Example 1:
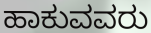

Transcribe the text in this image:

ಹಾಕುವವರು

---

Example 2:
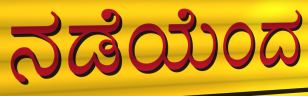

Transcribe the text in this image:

ನಡೆಯೆಂದ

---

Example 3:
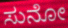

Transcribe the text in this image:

ಸುನೋ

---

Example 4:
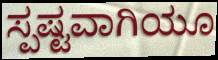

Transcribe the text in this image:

ಸ್ಪಷ್ಟವಾಗಿಯೂ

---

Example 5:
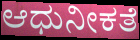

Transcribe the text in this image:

ಆಧುನೀಕತೆ